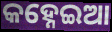
କହ୍ନେଇଆ